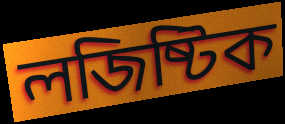
লজিষ্টিক